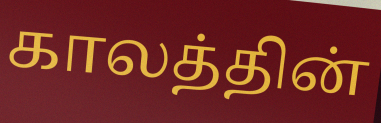
காலத்தின்